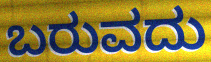
ಬರುವದು